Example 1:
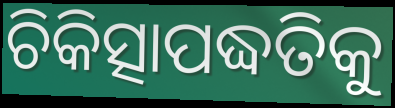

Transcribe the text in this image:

ଚିକିତ୍ସାପଦ୍ଧତିକୁ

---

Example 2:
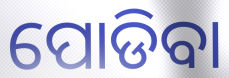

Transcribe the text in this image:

ପୋଡିବା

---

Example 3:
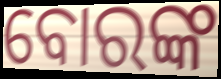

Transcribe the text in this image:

ବୋରଙ୍କ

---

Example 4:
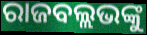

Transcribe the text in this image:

ରାଜବଲ୍ଲଭଙ୍କୁ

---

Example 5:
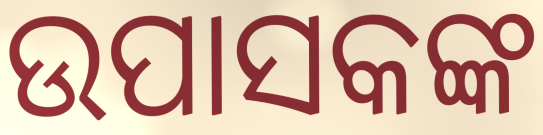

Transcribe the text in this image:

ଉପାସକଙ୍କ